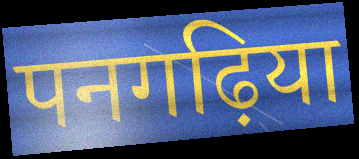
पनगढ़िया